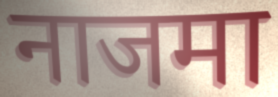
नाजमा